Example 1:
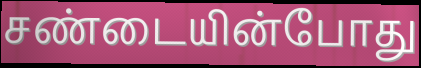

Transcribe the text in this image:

சண்டையின்போது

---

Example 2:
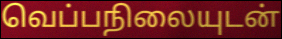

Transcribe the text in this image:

வெப்பநிலையுடன்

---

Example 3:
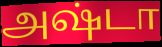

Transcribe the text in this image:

அஷ்டா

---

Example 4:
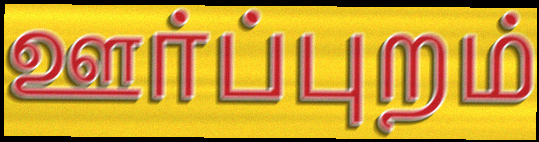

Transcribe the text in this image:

ஊர்ப்புறம்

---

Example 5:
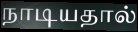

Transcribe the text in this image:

நாடியதால்